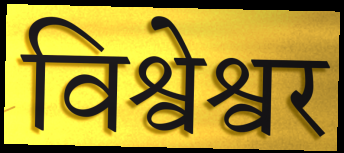
विश्वेश्वर